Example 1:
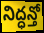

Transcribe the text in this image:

నిద్ధన్తో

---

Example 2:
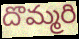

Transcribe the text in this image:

దొమ్మరి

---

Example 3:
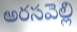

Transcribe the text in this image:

అరసవెల్లి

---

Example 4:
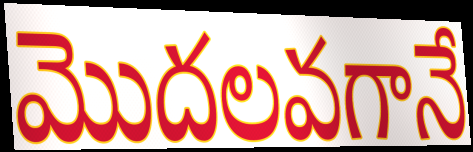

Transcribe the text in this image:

మొదలవగానే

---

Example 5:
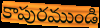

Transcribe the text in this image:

కాపురముండి